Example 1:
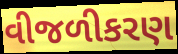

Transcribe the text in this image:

વીજળીકરણ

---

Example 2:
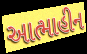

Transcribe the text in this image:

આત્માહીન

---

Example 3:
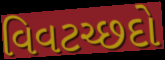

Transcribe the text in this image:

વિવટચ્છદો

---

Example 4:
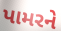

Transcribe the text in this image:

પામરને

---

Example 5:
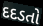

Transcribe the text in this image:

દદડતો